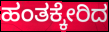
ಹಂತಕ್ಕೇರಿದ